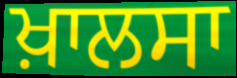
ਖ਼ਾਲਸਾ